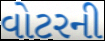
વોટરની